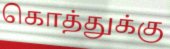
கொத்துக்கு